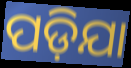
ପଡ଼ିଯା